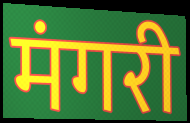
मंगरी